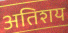
अतिशय